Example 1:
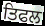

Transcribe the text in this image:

ਤਿਫਲ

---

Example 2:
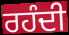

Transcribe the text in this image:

ਰਹੰਦੀ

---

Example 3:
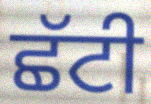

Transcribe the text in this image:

ਛੱਟੀ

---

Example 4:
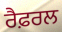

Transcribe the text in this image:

ਰੈਫ਼ਰਲ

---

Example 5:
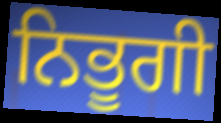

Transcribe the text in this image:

ਨਿਭੂਗੀ